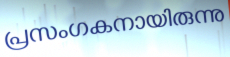
പ്രസംഗകനായിരുന്നു